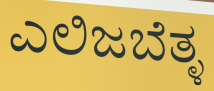
ಎಲಿಜಬೆತ್ಳ